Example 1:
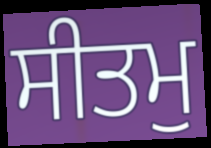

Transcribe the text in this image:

ਸੀਤਮੁ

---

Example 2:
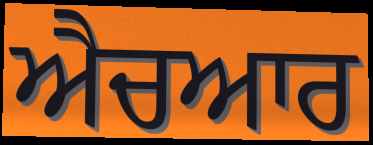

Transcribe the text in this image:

ਐਚਆਰ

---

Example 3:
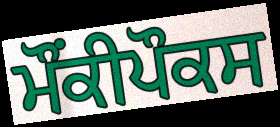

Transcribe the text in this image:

ਮੌਂਕੀਪੌਕਸ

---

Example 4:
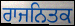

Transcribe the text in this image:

ਰਾਜਨਿਤਕ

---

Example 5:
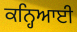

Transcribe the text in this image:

ਕਨ੍ਹਿਆਈ